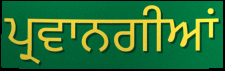
ਪ੍ਰਵਾਨਗੀਆਂ